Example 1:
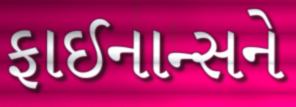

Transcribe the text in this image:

ફાઈનાન્સને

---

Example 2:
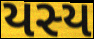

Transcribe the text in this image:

યસ્ય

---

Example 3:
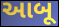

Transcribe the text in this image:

આબૂ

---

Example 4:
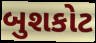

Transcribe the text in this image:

બુશકોટ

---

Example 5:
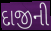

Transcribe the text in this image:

દાજીની